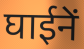
घाईनें